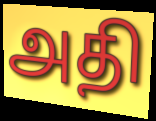
அதி